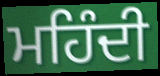
ਮਹਿੰਦੀ